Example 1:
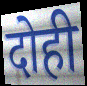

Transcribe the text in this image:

दोही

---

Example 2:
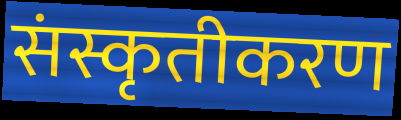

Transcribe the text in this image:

संस्कृतीकरण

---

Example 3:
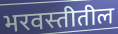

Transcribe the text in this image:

भरवस्तीतील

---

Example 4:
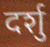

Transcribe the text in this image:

दर्शु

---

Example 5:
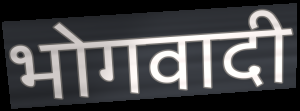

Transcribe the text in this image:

भोगवादी